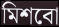
মিশবো